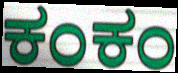
ಕಂಕಂ